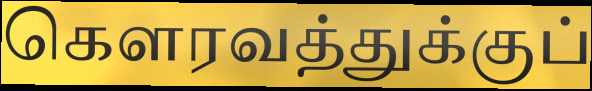
கௌரவத்துக்குப்